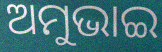
ଅମୁଭାଇ